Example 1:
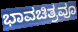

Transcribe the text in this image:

ಭಾವಚಿತ್ರವೂ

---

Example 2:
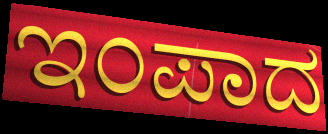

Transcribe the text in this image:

ಇಂಪಾದ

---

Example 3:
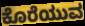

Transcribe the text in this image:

ಕೊರೆಯುವ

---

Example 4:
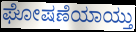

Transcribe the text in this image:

ಘೋಷಣೆಯಾಯ್ತು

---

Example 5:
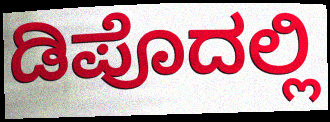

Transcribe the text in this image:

ಡಿಪೊದಲ್ಲಿ